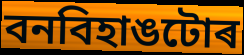
বনবিহাঙটোৰ